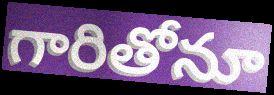
గారితోనూ